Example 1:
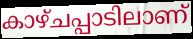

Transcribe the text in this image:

കാഴ്ചപ്പാടിലാണ്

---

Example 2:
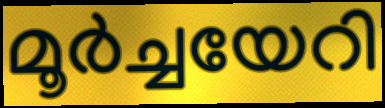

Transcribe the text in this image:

മൂർച്ചയേറി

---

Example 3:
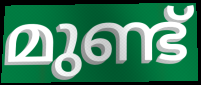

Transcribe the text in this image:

മുണ്ട്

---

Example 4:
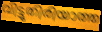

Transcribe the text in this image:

വിട്ടുതിരിയാത്ത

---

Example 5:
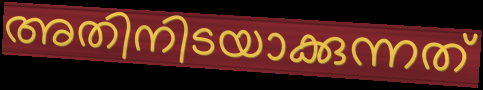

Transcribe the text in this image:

അതിനിടയാക്കുന്നത്